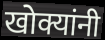
खोक्यांनी